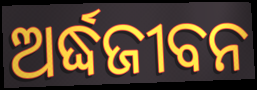
ଅର୍ଦ୍ଧଜୀବନ